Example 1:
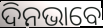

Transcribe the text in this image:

ଦିନଭାବେ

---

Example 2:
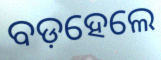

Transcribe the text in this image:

ବଡ଼ହେଲେ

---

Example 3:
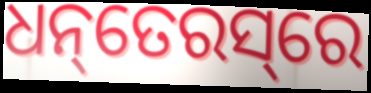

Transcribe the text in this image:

ଧନ୍‌ତେରସ୍‌ରେ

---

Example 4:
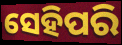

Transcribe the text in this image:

ସେହିପରି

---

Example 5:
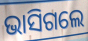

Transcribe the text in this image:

ଭାସିଗଲେ